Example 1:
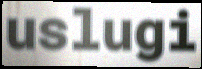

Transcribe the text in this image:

uslugi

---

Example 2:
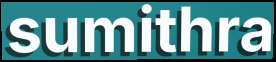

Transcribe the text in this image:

sumithra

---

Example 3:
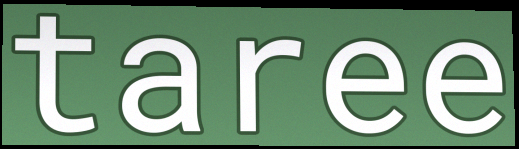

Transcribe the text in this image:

taree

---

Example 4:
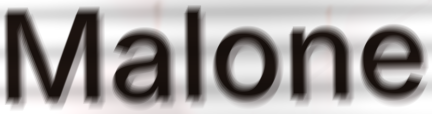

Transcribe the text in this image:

Malone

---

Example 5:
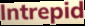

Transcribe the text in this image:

Intrepid